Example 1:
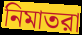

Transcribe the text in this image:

নিমাতরা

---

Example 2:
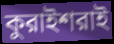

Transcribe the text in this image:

কুরাইশরাই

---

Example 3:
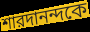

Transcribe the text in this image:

শারদানন্দকে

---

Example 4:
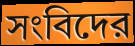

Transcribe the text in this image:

সংবিদের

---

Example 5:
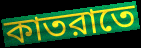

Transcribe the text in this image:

কাতরাতে